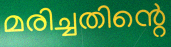
മരിച്ചതിന്റെ